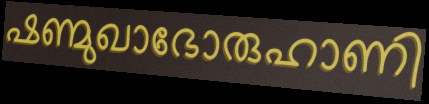
ഷണ്മുഖാഭോരുഹാണി